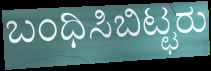
ಬಂಧಿಸಿಬಿಟ್ಟರು